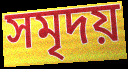
সমৃদয়